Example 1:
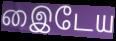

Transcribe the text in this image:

இைடேய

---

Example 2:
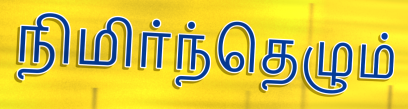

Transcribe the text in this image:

நிமிர்ந்தெழும்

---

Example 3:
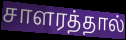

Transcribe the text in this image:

சாளரத்தால்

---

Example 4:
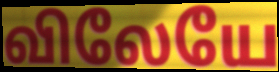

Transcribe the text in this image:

விலேயே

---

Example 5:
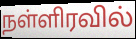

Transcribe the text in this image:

நள்ளிரவில்